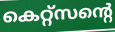
കെറ്റ്സന്റെ